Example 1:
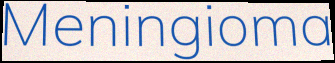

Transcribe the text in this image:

Meningioma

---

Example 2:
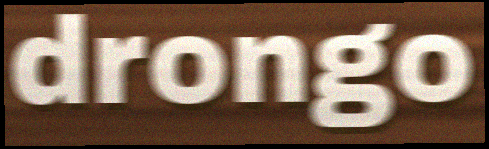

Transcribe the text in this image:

drongo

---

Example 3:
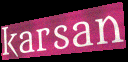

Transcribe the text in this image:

karsan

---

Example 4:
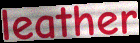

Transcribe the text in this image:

leather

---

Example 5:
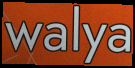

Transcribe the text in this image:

walya